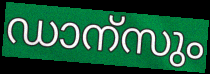
ഡാന്സും